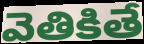
వెతికితే